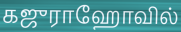
கஜுராஹோவில்